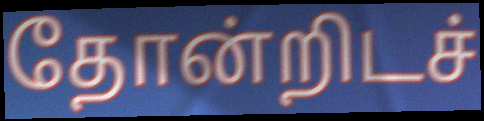
தோன்றிடச்